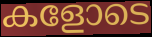
കളോടെ